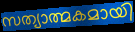
സത്യാത്മകമായി